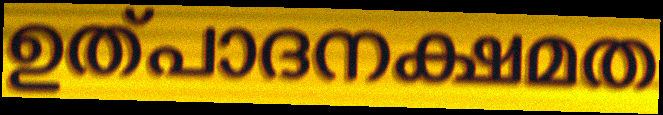
ഉത്പാദനക്ഷമത